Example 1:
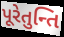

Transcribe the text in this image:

પૂરેતુન્તિ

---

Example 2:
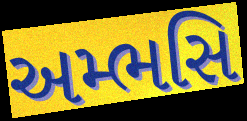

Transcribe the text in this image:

અમ્ભસિ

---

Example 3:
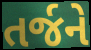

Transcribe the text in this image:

તર્જને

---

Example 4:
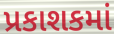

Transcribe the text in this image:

પ્રકાશકમાં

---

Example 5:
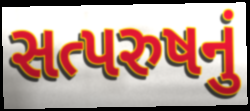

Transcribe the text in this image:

સત્પરુષનું